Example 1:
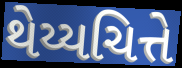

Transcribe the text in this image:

થેય્યચિત્તે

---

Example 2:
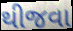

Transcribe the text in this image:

થીજવા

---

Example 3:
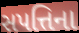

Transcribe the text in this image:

સપત્તિના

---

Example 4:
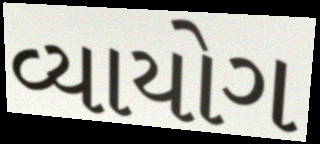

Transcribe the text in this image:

વ્યાયોગ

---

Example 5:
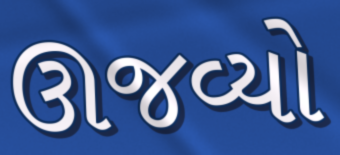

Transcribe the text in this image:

ઊજવ્યો